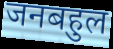
जनबहुल